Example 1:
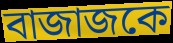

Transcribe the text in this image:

বাজাজকে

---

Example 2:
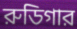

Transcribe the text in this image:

রুডিগার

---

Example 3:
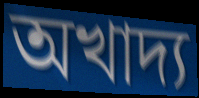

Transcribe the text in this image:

অখাদ্য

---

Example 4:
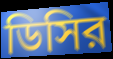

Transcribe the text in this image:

ডিসির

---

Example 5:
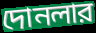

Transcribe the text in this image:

দোনলার